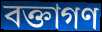
বক্তাগণ